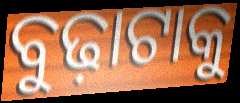
ବୁଢ଼ାଟାକୁ